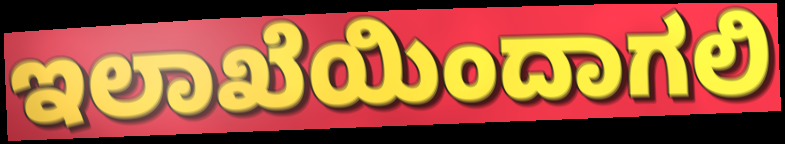
ಇಲಾಖೆಯಿಂದಾಗಲಿ